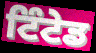
ਟਿੰਟੇਡ